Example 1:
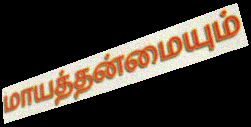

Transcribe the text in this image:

மாயத்தன்மையும்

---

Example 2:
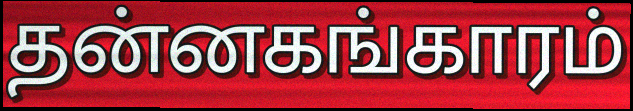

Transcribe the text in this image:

தன்னகங்காரம்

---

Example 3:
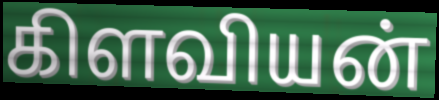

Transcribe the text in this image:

கிளவியன்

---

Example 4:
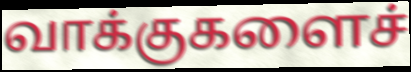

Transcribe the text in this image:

வாக்குகளைச்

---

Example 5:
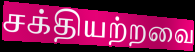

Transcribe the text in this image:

சக்தியற்றவை